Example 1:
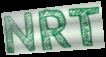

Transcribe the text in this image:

NRT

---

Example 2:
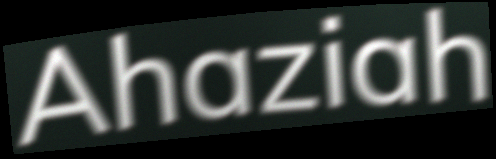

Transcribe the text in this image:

Ahaziah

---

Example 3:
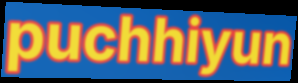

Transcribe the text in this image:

puchhiyun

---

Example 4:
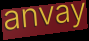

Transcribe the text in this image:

anvay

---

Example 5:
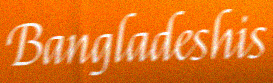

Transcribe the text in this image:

Bangladeshis